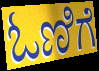
ಓಣಿಗೆ